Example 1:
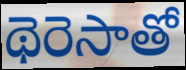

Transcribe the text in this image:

థెరెసాతో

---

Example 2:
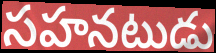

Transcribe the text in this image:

సహనటుడు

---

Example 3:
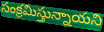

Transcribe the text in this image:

సంక్రమిస్తున్నాయని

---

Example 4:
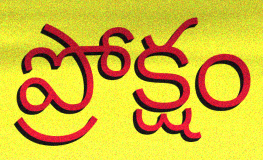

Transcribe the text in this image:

ప్రోక్షం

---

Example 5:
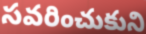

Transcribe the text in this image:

సవరించుకుని